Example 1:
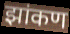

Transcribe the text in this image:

झांकण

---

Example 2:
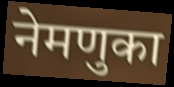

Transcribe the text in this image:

नेमणुका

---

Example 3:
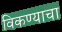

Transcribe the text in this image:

विकण्याचा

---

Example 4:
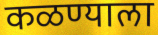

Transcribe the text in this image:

कळण्याला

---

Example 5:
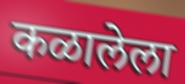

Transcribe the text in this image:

कळालेला